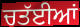
ਚਤੱਈਆਂ